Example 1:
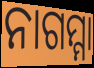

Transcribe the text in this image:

ନାଗମ୍ମା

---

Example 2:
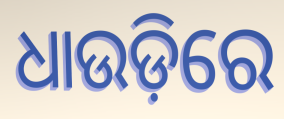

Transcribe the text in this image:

ଧାଉଡ଼ିରେ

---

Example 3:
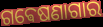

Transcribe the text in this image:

ଗଵେଷଣାଗାର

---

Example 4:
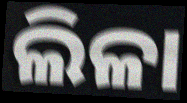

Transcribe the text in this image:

ଲିଳା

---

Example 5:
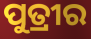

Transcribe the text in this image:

ପୁତ୍ରୀର